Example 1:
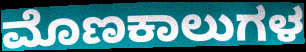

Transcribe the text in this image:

ಮೊಣಕಾಲುಗಳ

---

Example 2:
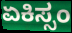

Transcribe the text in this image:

ಏಕಿಸ್ಸಂ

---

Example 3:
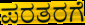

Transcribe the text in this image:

ಪರತರಗೆ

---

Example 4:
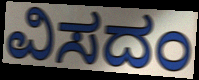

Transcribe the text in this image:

ವಿಸದಂ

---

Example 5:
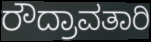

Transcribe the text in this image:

ರೌದ್ರಾವತಾರಿ